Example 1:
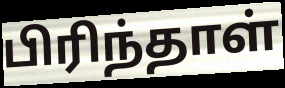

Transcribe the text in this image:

பிரிந்தாள்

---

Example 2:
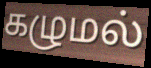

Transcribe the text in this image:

கழுமல்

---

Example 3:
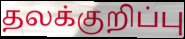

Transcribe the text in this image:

தலக்குறிப்பு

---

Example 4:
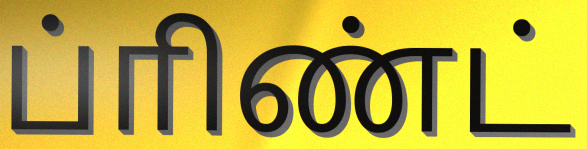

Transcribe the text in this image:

ப்ரிண்ட்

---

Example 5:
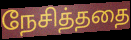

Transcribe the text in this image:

நேசித்ததை